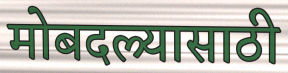
मोबदल्यासाठी